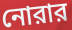
নোরার